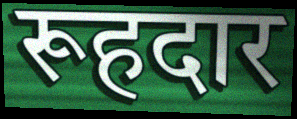
रूहदार